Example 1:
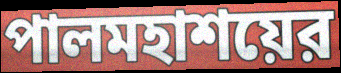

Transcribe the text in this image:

পালমহাশয়ের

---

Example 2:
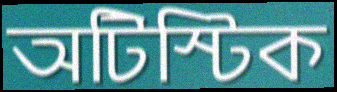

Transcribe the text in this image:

অটিস্টিক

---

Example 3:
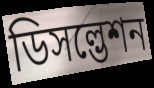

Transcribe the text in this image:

ডিসল্ভেশন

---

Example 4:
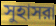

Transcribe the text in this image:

সুহাসরা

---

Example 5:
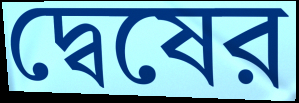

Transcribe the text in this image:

দ্বেষের